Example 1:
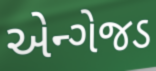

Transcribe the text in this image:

એન્ગેજડ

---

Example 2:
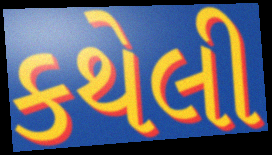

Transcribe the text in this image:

કથેલી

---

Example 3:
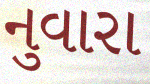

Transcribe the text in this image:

નુવારા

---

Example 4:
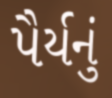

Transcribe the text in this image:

પૈર્યનું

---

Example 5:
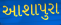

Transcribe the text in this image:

આશાપુરા